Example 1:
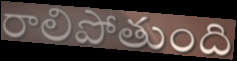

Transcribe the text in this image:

రాలిపోతుంది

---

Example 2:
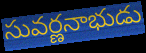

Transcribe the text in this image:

సువర్ణనాభుడు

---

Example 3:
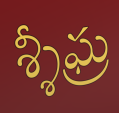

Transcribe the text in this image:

శ్శీఘ్ర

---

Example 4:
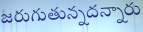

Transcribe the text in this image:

జరుగుతున్నదన్నారు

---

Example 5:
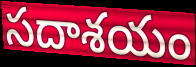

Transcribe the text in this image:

సదాశయం